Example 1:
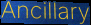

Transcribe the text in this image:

Ancillary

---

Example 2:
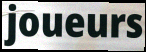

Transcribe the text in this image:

joueurs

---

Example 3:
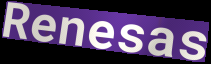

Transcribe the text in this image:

Renesas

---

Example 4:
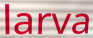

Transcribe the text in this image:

larva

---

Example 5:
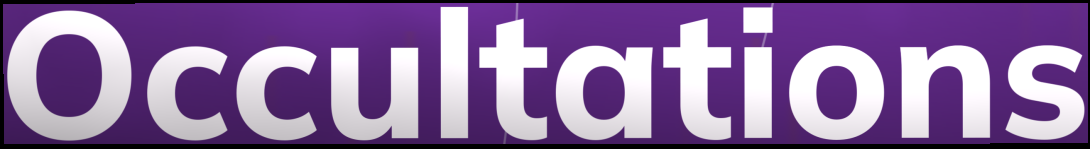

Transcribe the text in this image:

Occultations